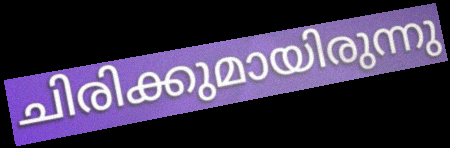
ചിരിക്കുമായിരുന്നു